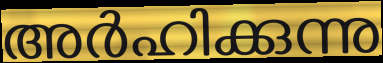
അർഹിക്കുന്നു